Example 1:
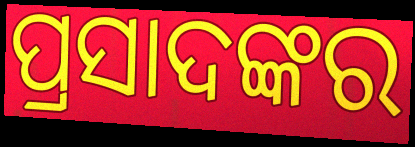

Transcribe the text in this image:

ପ୍ରସାଦଙ୍କର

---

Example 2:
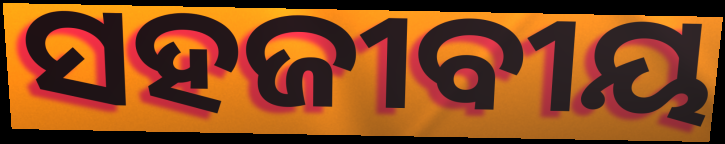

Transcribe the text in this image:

ସହଜୀବୀୟ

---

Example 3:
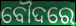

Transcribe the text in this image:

ବୌଦରେ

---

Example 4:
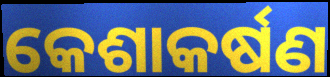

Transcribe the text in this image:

କେଶାକର୍ଷଣ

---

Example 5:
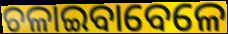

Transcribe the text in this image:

ଚଳାଇବାବେଳେ